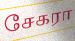
சேகரா